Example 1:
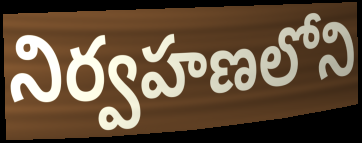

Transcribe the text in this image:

నిర్వహణలోని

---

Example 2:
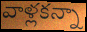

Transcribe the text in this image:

వాళ్లకన్నా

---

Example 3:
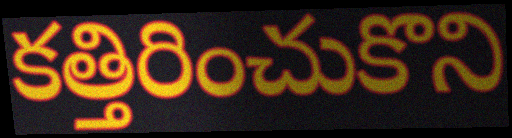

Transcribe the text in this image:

కత్తిరించుకొని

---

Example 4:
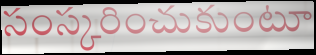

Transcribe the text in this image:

సంస్కరించుకుంటూ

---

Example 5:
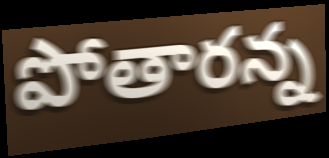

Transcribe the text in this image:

పోతారన్న